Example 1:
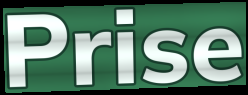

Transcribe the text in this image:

Prise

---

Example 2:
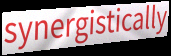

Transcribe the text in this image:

synergistically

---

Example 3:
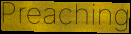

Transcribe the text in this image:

Preaching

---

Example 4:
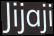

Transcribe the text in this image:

Jijaji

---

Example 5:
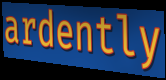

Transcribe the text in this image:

ardently